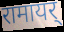
रामायर्